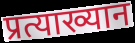
प्रत्याख्यान